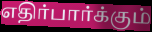
எதிர்பார்க்கும்